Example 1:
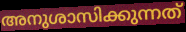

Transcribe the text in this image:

അനുശാസിക്കുന്നത്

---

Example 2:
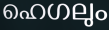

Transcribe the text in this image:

ഹെഗലും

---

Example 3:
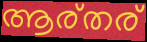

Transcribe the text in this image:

ആര്തര്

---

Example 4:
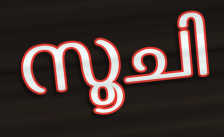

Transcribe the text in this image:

സൂചി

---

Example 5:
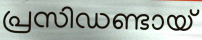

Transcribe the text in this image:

പ്രസിഡണ്ടായ്